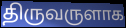
திருவருளாக